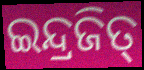
ଇନ୍ଦ୍ରଜିତ୍